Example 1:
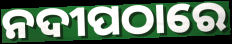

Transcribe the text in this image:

ନଦୀପଠାରେ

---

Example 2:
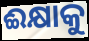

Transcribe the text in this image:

ଈକ୍ଷାକୁ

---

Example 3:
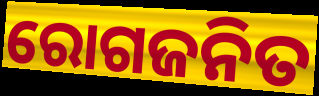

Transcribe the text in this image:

ରୋଗଜନିତ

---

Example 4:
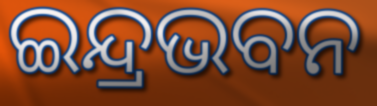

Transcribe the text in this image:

ଇନ୍ଦ୍ରଭବନ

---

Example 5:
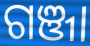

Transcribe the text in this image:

ଗଞ୍ଜା